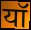
यॉ